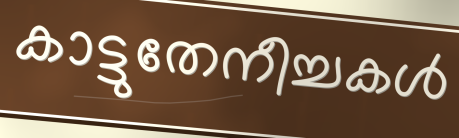
കാട്ടുതേനീച്ചകൾ